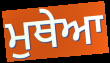
ਮੁਥੇਆ